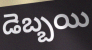
డెబ్బయి